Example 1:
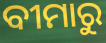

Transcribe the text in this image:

ବୀମାରୁ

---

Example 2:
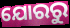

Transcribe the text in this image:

ଯୋରରୁ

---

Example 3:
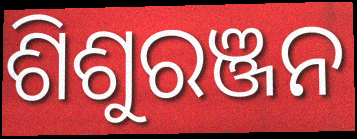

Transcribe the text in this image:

ଶିଶୁରଞ୍ଜନ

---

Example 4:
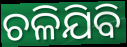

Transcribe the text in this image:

ଚଳିଯିବି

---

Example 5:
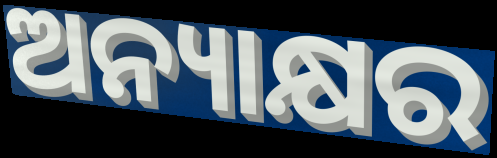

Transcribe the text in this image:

ଅନ୍ୟାକ୍ଷର